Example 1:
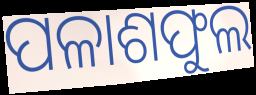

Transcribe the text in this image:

ପଳାଶଫୁଲ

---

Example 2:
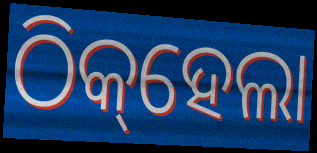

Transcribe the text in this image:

ଠିକ୍‌ହେଲା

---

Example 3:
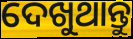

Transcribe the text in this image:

ଦେଖୁଥାନ୍ତୁ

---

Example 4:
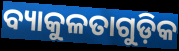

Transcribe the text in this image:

ବ୍ୟାକୁଳତାଗୁଡ଼ିକ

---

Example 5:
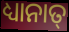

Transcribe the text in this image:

ଧ୍ୟାନାତ୍